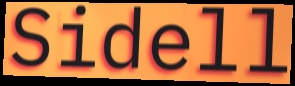
Sidell